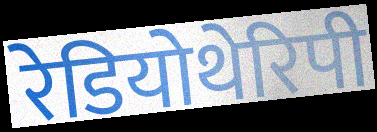
रेडियोथेरिपी